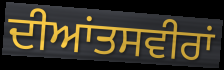
ਦੀਆਂਤਸਵੀਰਾਂ